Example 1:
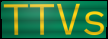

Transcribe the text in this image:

TTVs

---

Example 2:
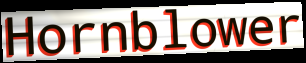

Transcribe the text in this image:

Hornblower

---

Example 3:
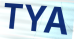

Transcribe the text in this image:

TYA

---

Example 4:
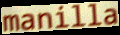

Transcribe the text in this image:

manilla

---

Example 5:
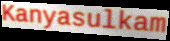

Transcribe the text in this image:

Kanyasulkam